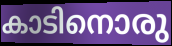
കാടിനൊരു